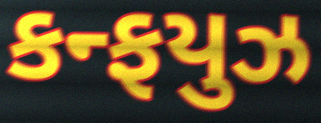
કન્ફયુઝ